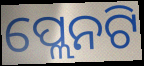
ପ୍ଲେନଟି